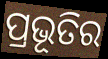
ପ୍ରଭୂତିର